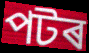
পটৰ